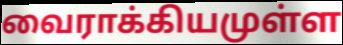
வைராக்கியமுள்ள